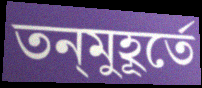
তন্‌মুহূর্তে